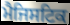
ਮੈਜਿਸਟਿਕ